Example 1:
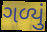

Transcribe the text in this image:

ગળ્યું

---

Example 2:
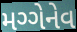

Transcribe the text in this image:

મગ્ગેનેવ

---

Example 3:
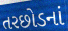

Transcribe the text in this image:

તરછોડનાં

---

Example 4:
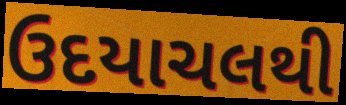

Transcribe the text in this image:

ઉદયાચલથી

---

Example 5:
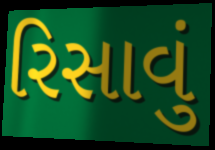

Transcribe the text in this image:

રિસાવું